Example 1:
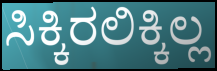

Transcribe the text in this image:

ಸಿಕ್ಕಿರಲಿಕ್ಕಿಲ್ಲ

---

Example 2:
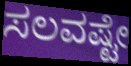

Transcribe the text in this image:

ಸಲವಷ್ಟೇ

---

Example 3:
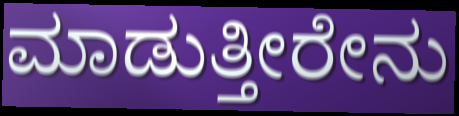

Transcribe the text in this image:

ಮಾಡುತ್ತೀರೇನು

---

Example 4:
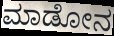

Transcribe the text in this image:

ಮಾಡೋನ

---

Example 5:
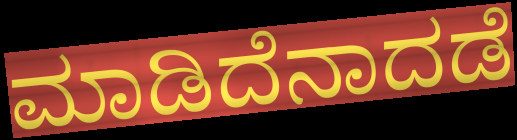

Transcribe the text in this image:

ಮಾಡಿದೆನಾದಡೆ